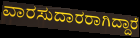
ವಾರಸುದಾರರಾಗಿದ್ದಾರೆ